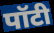
पॉटी